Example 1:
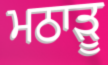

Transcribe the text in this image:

ਮਠਾੜੂ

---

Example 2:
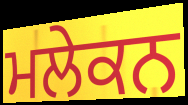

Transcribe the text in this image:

ਮਲੇਕਨ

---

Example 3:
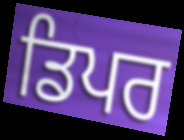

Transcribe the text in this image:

ਡਿਪਰ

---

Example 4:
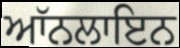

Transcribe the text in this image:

ਆੱਨਲਾਇਨ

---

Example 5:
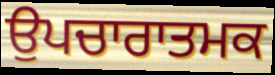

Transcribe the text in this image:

ਉਪਚਾਰਾਤਮਕ